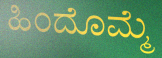
ಹಿಂದೊಮ್ಮೆ